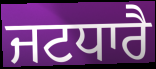
ਜਟਧਾਰੈ